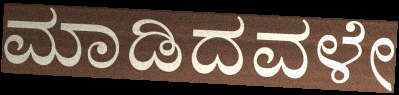
ಮಾಡಿದವಳೇ